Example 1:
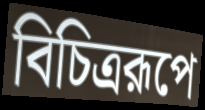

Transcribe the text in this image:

বিচিত্ররূপে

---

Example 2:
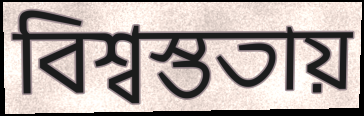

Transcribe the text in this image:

বিশ্বস্ততায়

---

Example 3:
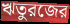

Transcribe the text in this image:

ঋতুরজের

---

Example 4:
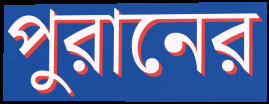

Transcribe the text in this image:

পুরানের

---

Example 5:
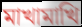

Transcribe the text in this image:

মাখামাখি